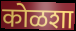
कोळशा